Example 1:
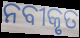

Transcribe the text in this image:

ନବୀକୃତ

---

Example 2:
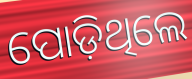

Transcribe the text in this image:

ପୋଡ଼ିଥିଲେ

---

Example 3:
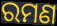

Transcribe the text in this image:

ରମଣ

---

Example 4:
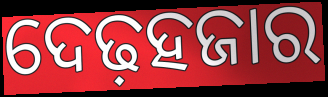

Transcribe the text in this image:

ଦେଢ଼ହଜାର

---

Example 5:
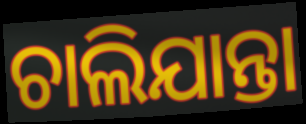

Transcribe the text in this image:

ଚାଲିଯାନ୍ତା